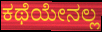
ಕಥೆಯೇನಲ್ಲ